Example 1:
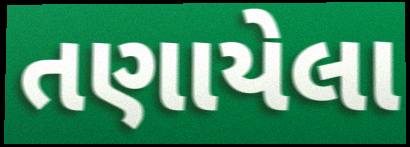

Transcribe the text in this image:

તણાયેલા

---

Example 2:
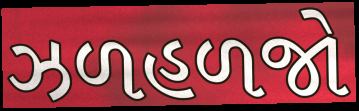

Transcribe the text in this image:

ઝળહળજો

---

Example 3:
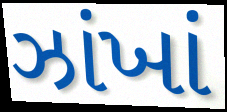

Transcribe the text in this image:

ઝાંખાં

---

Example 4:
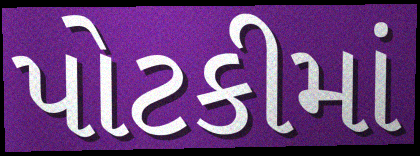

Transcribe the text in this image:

પોટકીમાં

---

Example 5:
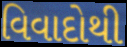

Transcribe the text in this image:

વિવાદોથી